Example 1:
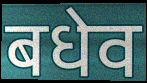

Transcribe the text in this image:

बधेव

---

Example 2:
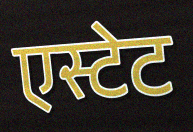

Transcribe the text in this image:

एस्टेट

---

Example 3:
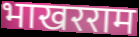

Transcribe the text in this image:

भाखरराम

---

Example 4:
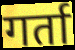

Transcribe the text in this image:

गर्ता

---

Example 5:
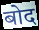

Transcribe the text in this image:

बोद